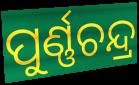
ପୁର୍ଣ୍ଣଚନ୍ଦ୍ର